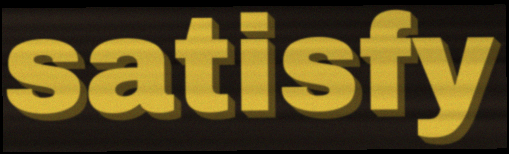
satisfy